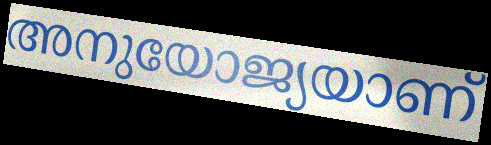
അനുയോജ്യയാണ്